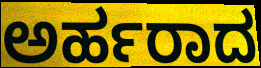
ಅರ್ಹರಾದ